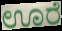
ಊರೆ